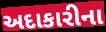
અદાકારીના